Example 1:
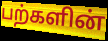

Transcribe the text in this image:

பற்களின்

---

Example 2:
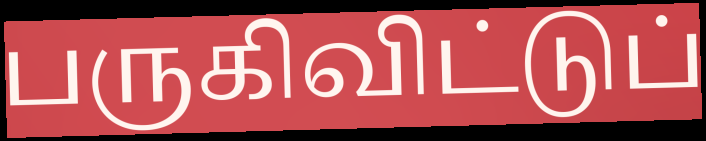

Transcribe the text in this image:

பருகிவிட்டுப்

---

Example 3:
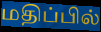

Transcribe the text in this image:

மதிப்பில்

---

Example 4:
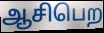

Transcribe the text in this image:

ஆசிபெற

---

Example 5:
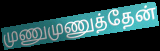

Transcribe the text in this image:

முணுமுணுத்தேன்